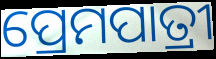
ପ୍ରେମପାତ୍ରୀ